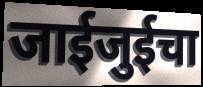
जाईजुईचा